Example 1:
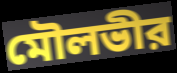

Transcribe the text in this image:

মৌলভীর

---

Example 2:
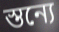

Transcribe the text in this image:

স্তন্যে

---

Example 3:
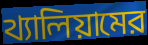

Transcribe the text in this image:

থ্যালিয়ামের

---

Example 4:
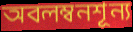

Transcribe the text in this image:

অবলম্বনশূন্য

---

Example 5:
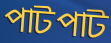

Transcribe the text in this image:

পাটপাট